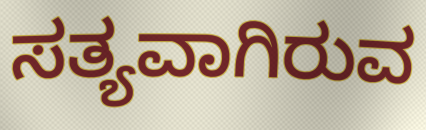
ಸತ್ಯವಾಗಿರುವ